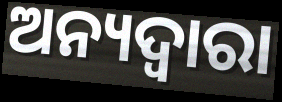
ଅନ୍ୟଦ୍ୱାରା